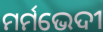
ମର୍ମଭେଦୀ